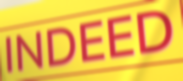
INDEED